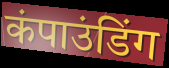
कंपाउंडिंग